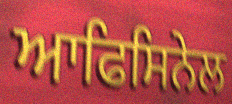
ਆਫਿਸਿਨੇਲ